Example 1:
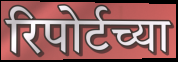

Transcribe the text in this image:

रिपोर्टच्या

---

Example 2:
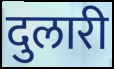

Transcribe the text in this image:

दुलारी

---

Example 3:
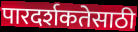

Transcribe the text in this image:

पारदर्शकतेसाठी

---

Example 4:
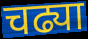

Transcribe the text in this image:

चढ्या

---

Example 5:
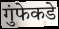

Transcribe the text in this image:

गुंफेकडे